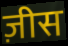
ज़ीस